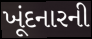
ખૂંદનારની